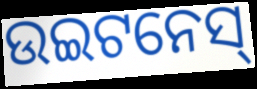
ଉଇଟନେସ୍